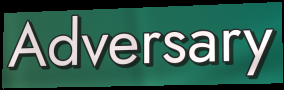
Adversary